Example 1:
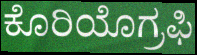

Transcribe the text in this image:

ಕೊರಿಯೊಗ್ರಫಿ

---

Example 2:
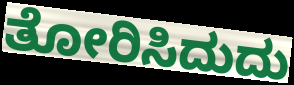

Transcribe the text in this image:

ತೋರಿಸಿದುದು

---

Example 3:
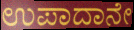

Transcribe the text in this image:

ಉಪಾದಾನೇ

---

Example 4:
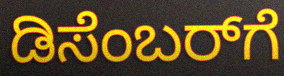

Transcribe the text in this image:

ಡಿಸೆಂಬರ್‌ಗೆ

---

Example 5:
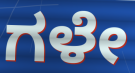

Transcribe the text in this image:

ಗಳೇ